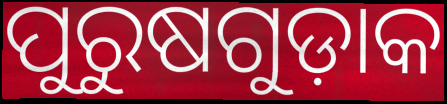
ପୁରୁଷଗୁଡ଼ାକ